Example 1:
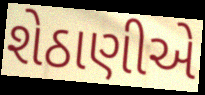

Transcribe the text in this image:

શેઠાણીએ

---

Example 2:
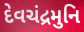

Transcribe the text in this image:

દેવચંદ્રમુનિ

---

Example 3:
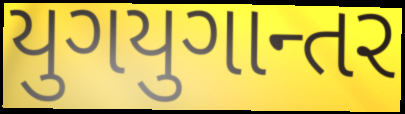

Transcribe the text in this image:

યુગયુગાન્તર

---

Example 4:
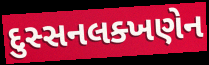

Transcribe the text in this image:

દુસ્સનલક્ખણેન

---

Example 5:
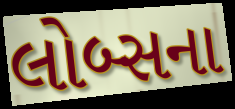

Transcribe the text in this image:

લોબ્સના